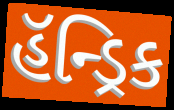
હૅન્ડ્રિક